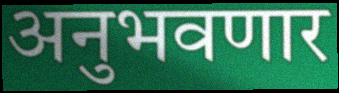
अनुभवणार